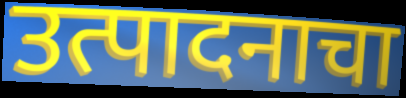
उत्पादनाचा